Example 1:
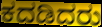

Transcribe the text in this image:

ಕದಡಿದರು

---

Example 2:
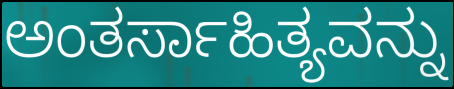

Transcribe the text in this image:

ಅಂತರ್ಸಾಹಿತ್ಯವನ್ನು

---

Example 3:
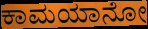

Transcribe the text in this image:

ಕಾಮಯಾನೋ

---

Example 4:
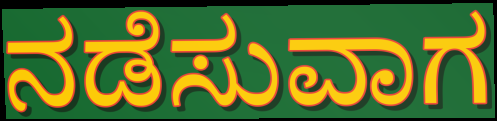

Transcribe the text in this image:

ನಡೆಸುವಾಗ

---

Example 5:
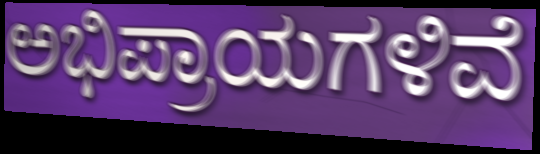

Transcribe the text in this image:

ಅಭಿಪ್ರಾಯಗಳಿವೆ